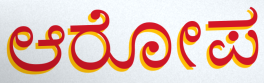
ಆರೋಪ